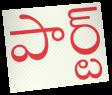
పార్ట్